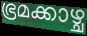
ഭ്രമക്കാഴ്ച